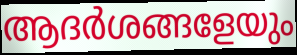
ആദർശങ്ങളേയും